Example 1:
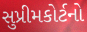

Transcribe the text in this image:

સુપ્રીમકોર્ટનો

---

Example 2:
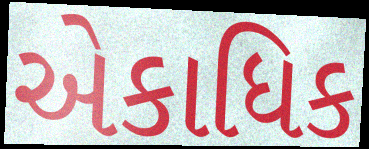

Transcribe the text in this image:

એકાધિક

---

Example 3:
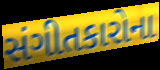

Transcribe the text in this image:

સંગીતકારોના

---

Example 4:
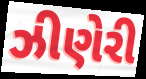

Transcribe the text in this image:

ઝીણેરી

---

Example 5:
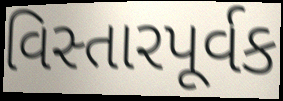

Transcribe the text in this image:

વિસ્તારપૂર્વક